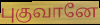
புகுவானே